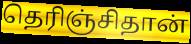
தெரிஞ்சிதான்